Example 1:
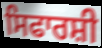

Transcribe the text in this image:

ਸਿਫਾਰਸ਼ੀ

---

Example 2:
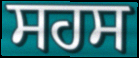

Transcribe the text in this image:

ਸਹਸ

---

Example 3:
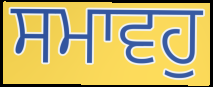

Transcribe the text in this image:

ਸਮਾਵਹੁ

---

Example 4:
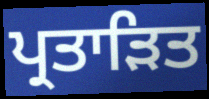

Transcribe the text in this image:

ਪ੍ਰਤਾੜਿਤ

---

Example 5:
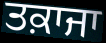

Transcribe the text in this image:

ਤਕ਼ਾਜਾ